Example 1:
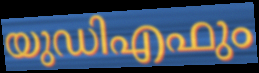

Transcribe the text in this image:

യുഡിഎഫും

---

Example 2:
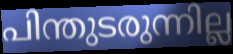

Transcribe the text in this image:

പിന്തുടരുന്നില്ല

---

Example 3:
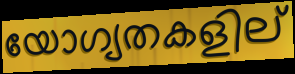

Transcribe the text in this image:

യോഗ്യതകളില്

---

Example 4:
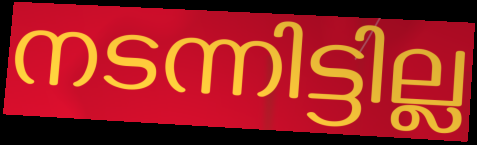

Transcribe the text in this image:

നടന്നിട്ടില്ല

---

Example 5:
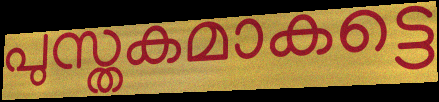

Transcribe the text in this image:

പുസ്തകമാകട്ടെ